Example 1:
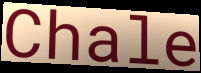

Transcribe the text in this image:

Chale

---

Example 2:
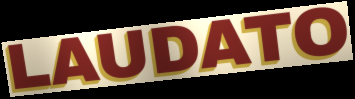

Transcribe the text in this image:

LAUDATO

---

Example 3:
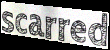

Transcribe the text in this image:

scarred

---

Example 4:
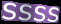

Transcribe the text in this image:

ssss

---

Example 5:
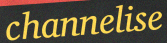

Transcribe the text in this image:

channelise